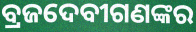
ବ୍ରଜଦେବୀଗଣଙ୍କର